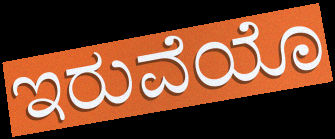
ಇರುವೆಯೊ